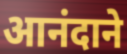
आनंदाने